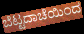
ಬೆಟ್ಟದಾಚೆಯಿಂದ